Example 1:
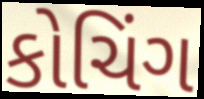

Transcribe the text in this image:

કોચિંગ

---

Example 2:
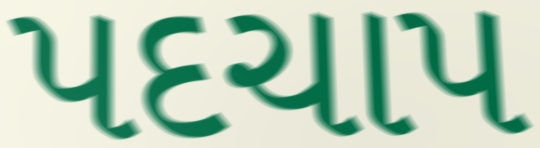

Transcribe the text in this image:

પદચાપ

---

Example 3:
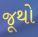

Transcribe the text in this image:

જૂથો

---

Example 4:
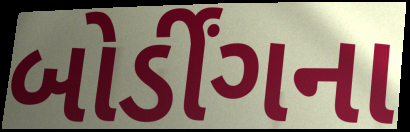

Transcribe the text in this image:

બોર્ડીંગના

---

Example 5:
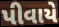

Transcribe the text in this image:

પીવાયે